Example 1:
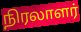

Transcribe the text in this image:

நிரலாளர்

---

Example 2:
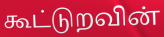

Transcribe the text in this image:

கூட்டுறவின்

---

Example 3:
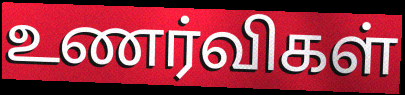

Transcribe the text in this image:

உணர்விகள்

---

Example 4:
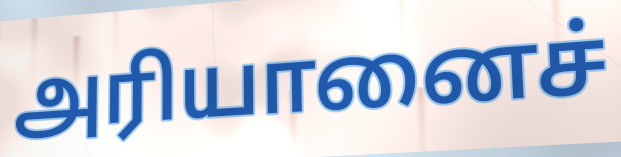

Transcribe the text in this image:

அரியானைச்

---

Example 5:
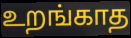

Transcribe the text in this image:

உறங்காத